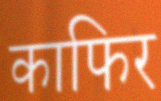
काफिर